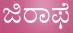
ಜಿರಾಫೆ